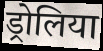
ड्रोलिया